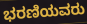
ಭರಣಿಯವರು